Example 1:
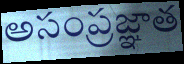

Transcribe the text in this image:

అసంప్రజ్ఞాత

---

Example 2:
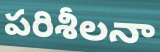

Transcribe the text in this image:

పరిశీలనా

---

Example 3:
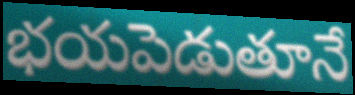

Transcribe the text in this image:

భయపెడుతూనే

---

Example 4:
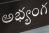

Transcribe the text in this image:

అభ్యంగ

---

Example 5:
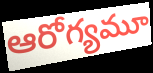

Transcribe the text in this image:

ఆరోగ్యమూ